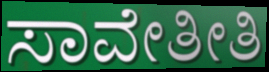
ಸಾವೇತೀತಿ